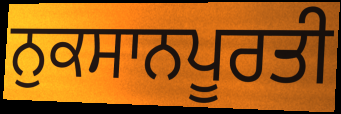
ਨੁਕਸਾਨਪੂਰਤੀ